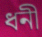
ধনী